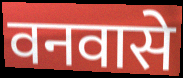
वनवासे